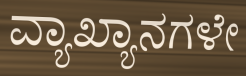
ವ್ಯಾಖ್ಯಾನಗಳೇ